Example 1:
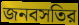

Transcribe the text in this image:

জনবসতির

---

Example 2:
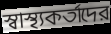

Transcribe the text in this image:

স্বাস্থ্যকর্তাদের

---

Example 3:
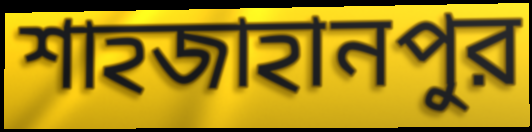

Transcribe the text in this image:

শাহজাহানপুর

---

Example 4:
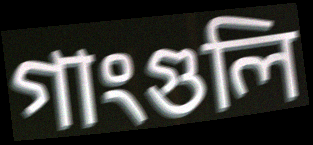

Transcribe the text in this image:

গাংগুলি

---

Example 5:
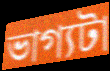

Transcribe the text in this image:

ভাগ্যটা